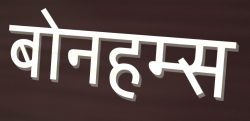
बोनहम्स